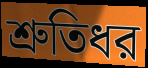
শ্রুতিধর